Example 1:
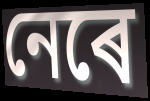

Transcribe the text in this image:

নেৰে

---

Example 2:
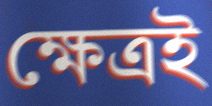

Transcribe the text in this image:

ক্ষেত্ৰই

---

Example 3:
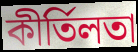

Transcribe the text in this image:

কীৰ্তিলতা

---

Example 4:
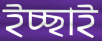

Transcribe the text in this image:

ইচ্ছাই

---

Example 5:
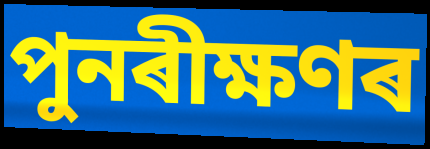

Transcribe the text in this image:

পুনৰীক্ষণৰ